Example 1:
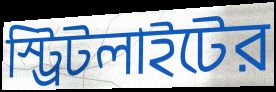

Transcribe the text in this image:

স্ট্রিটলাইটের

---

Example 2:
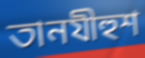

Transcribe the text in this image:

তানযীহুশ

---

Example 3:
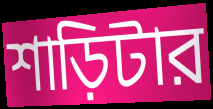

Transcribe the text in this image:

শাড়িটার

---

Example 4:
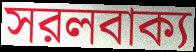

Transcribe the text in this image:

সরলবাক্য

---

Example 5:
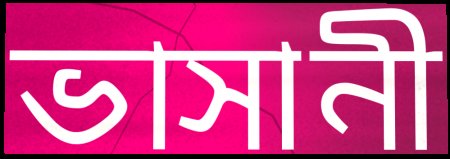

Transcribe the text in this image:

ভাসানী